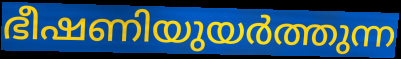
ഭീഷണിയുയർത്തുന്ന